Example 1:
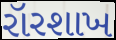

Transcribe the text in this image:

રૉરશાખ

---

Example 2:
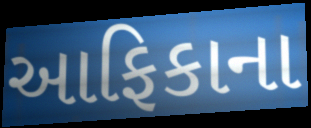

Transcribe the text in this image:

આફિકાના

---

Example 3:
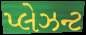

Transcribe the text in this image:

પ્લેઝન્ટ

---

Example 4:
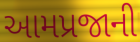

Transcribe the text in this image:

આમપ્રજાની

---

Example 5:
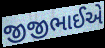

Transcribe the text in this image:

જીજીભાઈએ